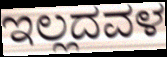
ಇಲ್ಲದವಳ